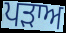
ਪਡ਼ਾਅ